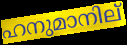
ഹനുമാനില്